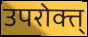
उपरोक्त्